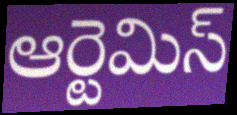
ఆర్టెమిస్